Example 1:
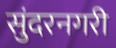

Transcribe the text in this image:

सुंदरनगरी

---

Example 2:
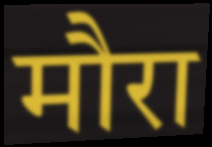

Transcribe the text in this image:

मौरा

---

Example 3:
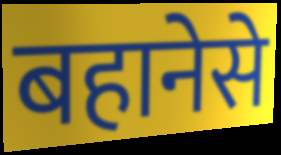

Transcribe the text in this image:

बहानेसे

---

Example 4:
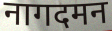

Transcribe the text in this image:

नागदमन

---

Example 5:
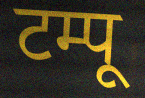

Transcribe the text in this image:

टम्पू